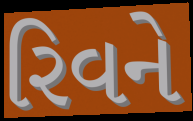
રિવને